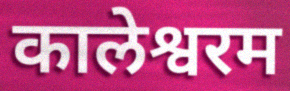
कालेश्वरम